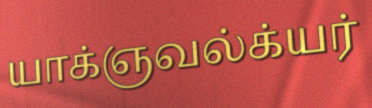
யாக்ஞவல்க்யர்